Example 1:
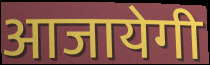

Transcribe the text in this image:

आजायेगी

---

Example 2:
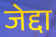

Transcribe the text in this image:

जेद्दा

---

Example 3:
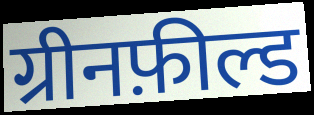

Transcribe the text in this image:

ग्रीनफ़ील्ड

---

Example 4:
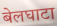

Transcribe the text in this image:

बेलघाटा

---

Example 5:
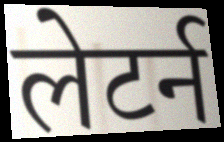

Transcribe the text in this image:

लेटर्न